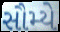
સૌમ્યે